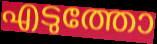
എടുത്തോ